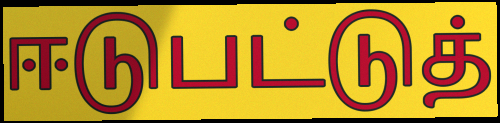
ஈடுபட்டுத்